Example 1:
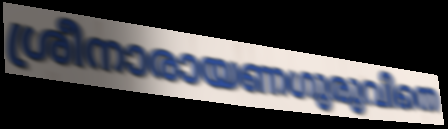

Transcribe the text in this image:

ശ്രീനാരായണഗുരുവിനെ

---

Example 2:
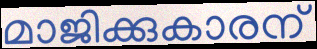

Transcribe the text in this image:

മാജിക്കുകാരന്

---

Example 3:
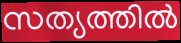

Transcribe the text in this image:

സത്യത്തിൽ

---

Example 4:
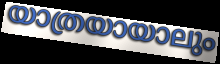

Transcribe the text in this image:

യാത്രയായാലും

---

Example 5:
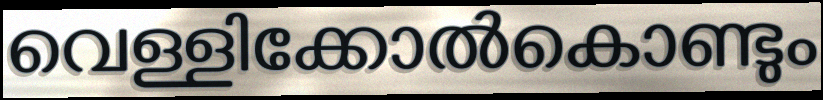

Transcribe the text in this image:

വെള്ളിക്കോൽകൊണ്ടും